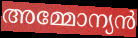
അമ്മോന്യൻ